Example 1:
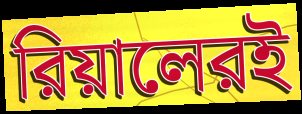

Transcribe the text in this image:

রিয়ালেরই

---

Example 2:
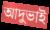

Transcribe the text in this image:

আদুভাই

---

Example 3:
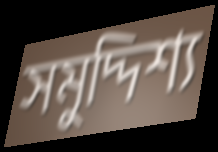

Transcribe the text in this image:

সমুদ্দিশ্য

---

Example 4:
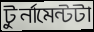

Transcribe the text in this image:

টুর্নামেন্টটা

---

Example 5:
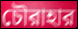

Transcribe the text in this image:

চৌরাহার